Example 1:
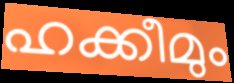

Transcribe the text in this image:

ഹക്കീമും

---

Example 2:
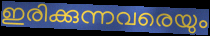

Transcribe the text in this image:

ഇരിക്കുന്നവരെയും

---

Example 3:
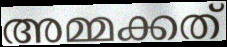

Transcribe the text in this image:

അമ്മക്കത്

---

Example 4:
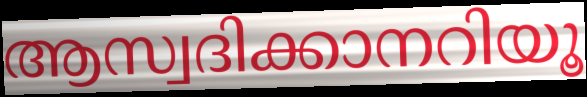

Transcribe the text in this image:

ആസ്വദിക്കാനറിയൂ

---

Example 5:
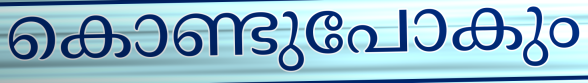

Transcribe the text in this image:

കൊണ്ടുപോകും